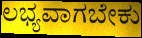
ಲಭ್ಯವಾಗಬೇಕು